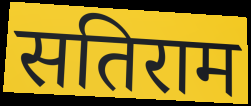
सतिराम